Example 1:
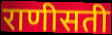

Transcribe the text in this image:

राणीसती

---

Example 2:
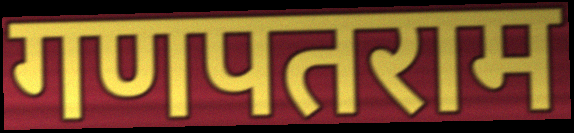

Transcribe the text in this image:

गणपतराम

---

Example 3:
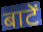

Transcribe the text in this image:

बाटें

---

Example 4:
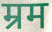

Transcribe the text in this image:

म्रम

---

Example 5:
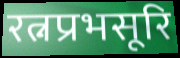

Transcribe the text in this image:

रत्नप्रभसूरि